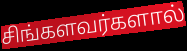
சிங்களவர்களால்